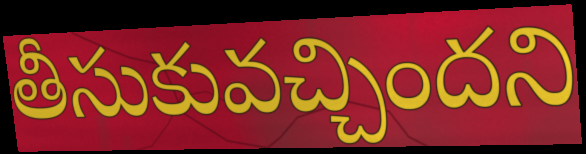
తీసుకువచ్చిందని